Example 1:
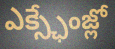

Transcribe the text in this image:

ఎక్స్ఛేంజ్లో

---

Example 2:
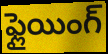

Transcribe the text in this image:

ఫ్లైయింగ్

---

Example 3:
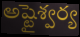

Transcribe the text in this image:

అష్టైశ్వర్య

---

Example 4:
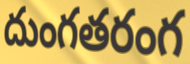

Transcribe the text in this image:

దుంగతరంగ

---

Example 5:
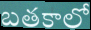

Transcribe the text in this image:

బతకాలో